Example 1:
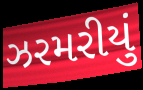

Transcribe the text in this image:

ઝરમરીયું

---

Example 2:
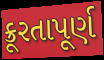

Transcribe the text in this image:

ક્રૂરતાપૂર્ણ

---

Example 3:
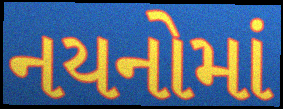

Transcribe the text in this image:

નયનોમાં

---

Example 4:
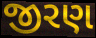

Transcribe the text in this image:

જીરણ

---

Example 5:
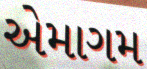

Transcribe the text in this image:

એમાગમ